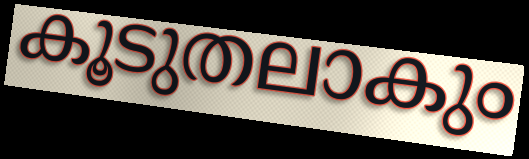
കൂടുതലാകും